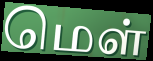
மெள்